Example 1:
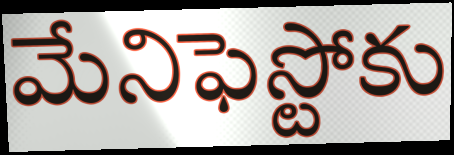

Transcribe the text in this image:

మేనిఫెస్టోకు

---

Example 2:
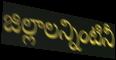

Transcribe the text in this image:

జిల్లాలన్నింటినీ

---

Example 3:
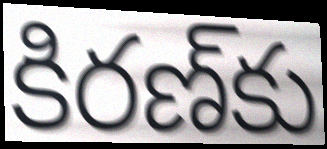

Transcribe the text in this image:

కిరణ్‌కు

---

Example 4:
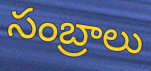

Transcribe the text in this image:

సంబ్రాలు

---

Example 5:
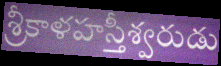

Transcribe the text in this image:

శ్రీకాళహస్తీశ్వరుడు